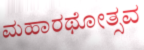
ಮಹಾರಥೋತ್ಸವ